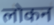
लोकन